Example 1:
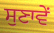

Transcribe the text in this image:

ਸੁਣਾਵੇਂ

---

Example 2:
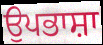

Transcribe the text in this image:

ਉਪਭਾਸ਼ਾ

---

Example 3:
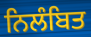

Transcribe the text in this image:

ਨਿਲੰਬਿਤ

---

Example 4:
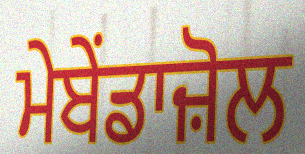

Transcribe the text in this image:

ਮੇਬੇਂਡਾਜ਼ੋਲ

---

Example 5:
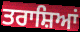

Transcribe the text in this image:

ਤਰਾਸ਼ਿਆਂ